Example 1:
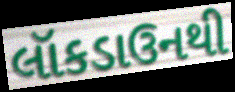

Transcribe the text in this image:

લૉકડાઉનથી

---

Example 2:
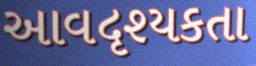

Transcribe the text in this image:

આવદૃશ્યકતા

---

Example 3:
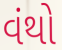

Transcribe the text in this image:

વંથો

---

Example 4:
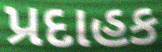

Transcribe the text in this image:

પ્રદાહક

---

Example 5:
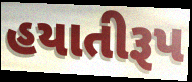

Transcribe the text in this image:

હયાતીરૂપ